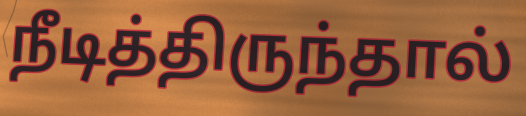
நீடித்திருந்தால்